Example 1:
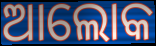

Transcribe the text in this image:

ଆଲୋକ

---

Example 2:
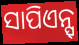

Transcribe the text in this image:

ସାପିଏନ୍ସ୍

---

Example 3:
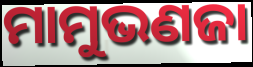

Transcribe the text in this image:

ମାମୁଭଣଜା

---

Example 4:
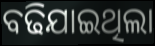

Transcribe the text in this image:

ବଢିଯାଇଥିଲା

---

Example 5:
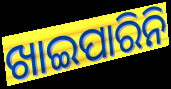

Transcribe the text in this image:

ଖାଇପାରିନି